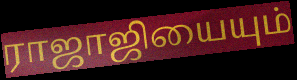
ராஜாஜியையும்